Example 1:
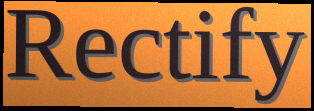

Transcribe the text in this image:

Rectify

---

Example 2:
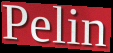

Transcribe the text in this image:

Pelin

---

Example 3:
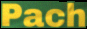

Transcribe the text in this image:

Pach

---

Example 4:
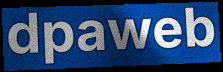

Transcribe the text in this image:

dpaweb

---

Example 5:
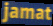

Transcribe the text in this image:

jamat